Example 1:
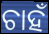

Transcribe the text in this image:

ଚାହଁ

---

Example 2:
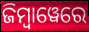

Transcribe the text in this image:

ଜିମ୍ୱାୱେରେ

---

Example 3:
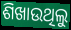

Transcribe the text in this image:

ଶିଖାଉଥିଲୁ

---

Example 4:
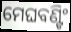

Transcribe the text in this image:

ମେଘବଣ୍ଟିଂ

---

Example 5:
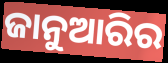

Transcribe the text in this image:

ଜାନୁଆରିର